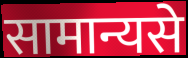
सामान्यसे